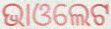
ଭାଓଲେଟ